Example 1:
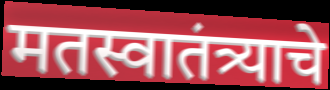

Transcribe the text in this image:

मतस्वातंत्र्याचे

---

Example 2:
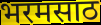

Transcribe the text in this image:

भरमसाठ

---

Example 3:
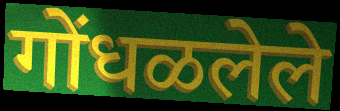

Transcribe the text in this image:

गोंधळलेले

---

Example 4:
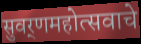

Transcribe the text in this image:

सुवर्णमहोत्सवाचे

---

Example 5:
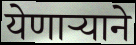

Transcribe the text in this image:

येणाऱ्याने